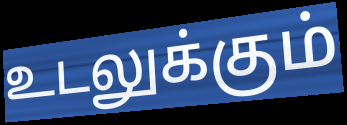
உடலுக்கும்